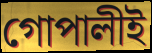
গোপালীই